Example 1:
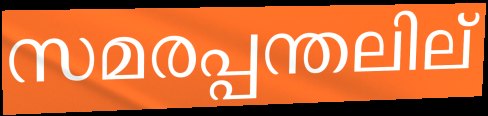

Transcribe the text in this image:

സമരപ്പന്തലില്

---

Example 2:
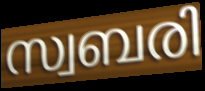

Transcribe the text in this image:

സ്വബരി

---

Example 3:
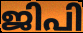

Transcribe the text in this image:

ജിപി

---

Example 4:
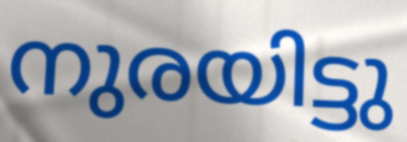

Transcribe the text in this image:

നുരയിട്ടു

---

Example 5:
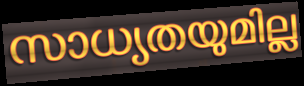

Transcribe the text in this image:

സാധ്യതയുമില്ല